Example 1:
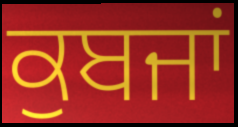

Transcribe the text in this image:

ਕੁਬਜਾਂ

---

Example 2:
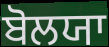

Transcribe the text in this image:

ਬੋਲਯਾ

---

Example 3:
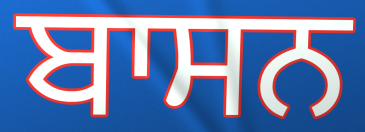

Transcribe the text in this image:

ਬਾਸਨ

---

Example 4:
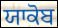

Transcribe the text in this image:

ਯਾਕੋਬ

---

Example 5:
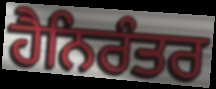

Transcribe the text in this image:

ਹੈਨਿਰੰਤਰ